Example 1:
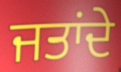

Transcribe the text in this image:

ਜਤਾਂਦੇ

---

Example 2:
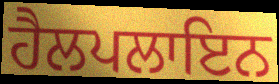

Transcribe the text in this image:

ਹੈਲਪਲਾਇਨ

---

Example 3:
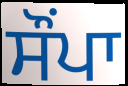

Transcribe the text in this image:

ਸੌਂਪਾ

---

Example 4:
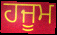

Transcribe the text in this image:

ਹਜੂਮ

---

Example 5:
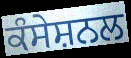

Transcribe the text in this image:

ਕੰਸੇਸ਼ਨਲ